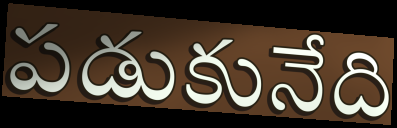
పడుకునేది